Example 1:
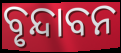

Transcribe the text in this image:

ବୃନ୍ଦାବନ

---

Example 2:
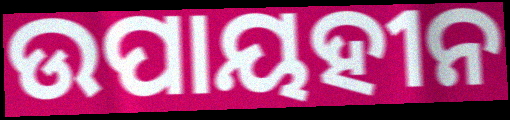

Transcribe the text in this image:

ଉପାୟହୀନ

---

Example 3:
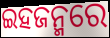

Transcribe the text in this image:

ଇହଜନ୍ମରେ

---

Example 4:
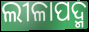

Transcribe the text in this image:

ଲୀଳାପଦ୍ମ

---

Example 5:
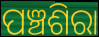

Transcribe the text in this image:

ପଞ୍ଚଶିରା